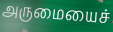
அருமையைச்